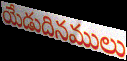
యేడుదినములు